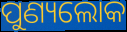
ପୁଣ୍ୟଲୋକ